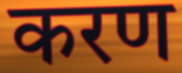
करण